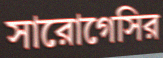
সারোগেসির